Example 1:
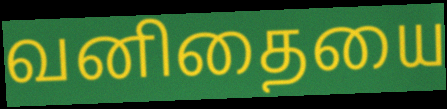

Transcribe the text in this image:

வனிதையை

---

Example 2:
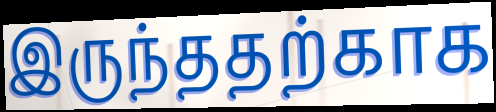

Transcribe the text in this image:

இருந்ததற்காக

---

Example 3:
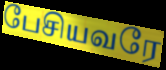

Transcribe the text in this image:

பேசியவரே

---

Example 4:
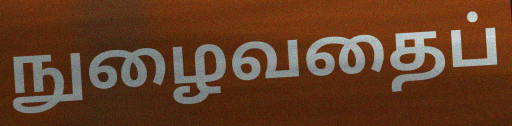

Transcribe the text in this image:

நுழைவதைப்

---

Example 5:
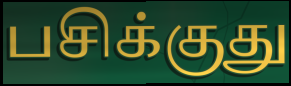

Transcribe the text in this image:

பசிக்குது